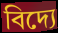
বিদ্যে